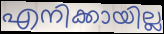
എനിക്കായില്ല